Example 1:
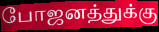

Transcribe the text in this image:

போஜனத்துக்கு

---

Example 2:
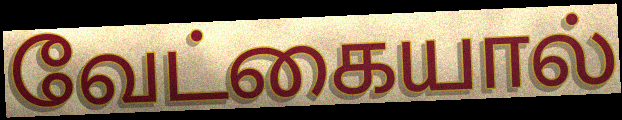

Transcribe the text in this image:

வேட்கையால்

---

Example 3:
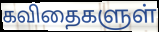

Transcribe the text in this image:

கவிதைகளுள்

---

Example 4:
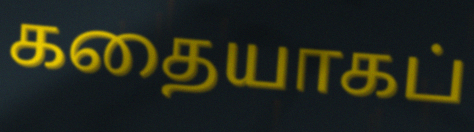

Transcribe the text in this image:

கதையாகப்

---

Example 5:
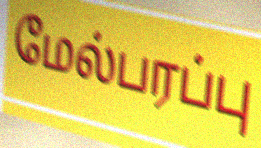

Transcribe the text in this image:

மேல்பரப்பு